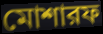
মোশারফ